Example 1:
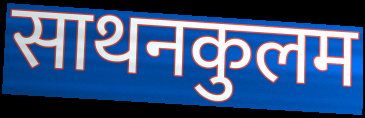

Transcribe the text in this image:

साथनकुलम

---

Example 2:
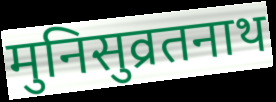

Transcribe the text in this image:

मुनिसुव्रतनाथ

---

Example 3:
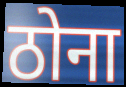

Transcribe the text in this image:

ठोना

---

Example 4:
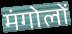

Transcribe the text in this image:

मंगोलों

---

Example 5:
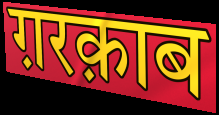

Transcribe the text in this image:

ग़रक़ाब